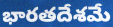
భారతదేశమే